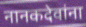
नानकदेवांना